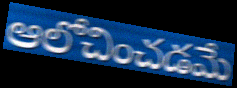
ఆలోచించడమే